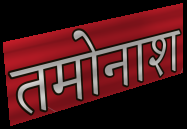
तमोनाश